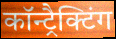
कॉन्ट्रैक्टिंग